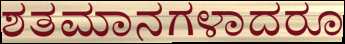
ಶತಮಾನಗಳಾದರೂ